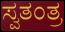
ಸ್ವತಂತ್ರ